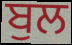
ਬੁਲ